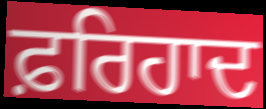
ਫ਼ਰਿਹਾਦ